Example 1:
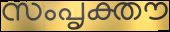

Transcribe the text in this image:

സംപൃക്തൗ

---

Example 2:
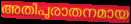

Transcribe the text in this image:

അതിപുരാതനമായ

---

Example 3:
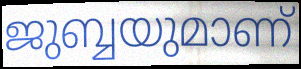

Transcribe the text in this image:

ജുബ്ബയുമാണ്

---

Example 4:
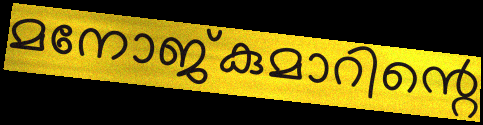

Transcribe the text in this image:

മനോജ്കുമാറിന്റെ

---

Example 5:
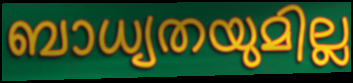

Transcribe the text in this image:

ബാധ്യതയുമില്ല